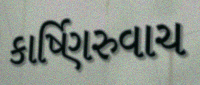
કાર્ષ્ણિરુવાચ